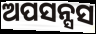
ଅପସନ୍ସସ